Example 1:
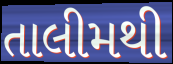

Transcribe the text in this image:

તાલીમથી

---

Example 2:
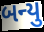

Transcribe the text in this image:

બન્યુ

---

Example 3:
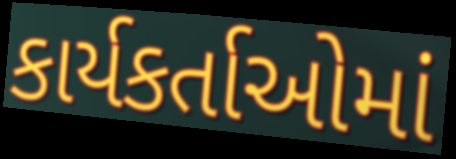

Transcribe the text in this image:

કાર્યકર્તાઓમાં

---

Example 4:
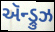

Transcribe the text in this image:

ઍન્ડ્રુઝ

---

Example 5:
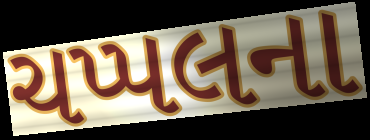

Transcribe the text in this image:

ચપ્પલના